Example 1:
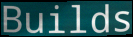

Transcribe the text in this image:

Builds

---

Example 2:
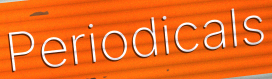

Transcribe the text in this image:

Periodicals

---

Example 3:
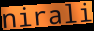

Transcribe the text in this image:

nirali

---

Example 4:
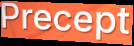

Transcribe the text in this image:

Precept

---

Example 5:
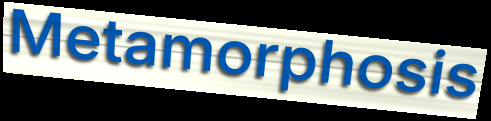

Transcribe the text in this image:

Metamorphosis